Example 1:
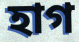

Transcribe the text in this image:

হাগ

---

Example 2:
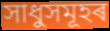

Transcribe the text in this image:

সাধুসমূহৰ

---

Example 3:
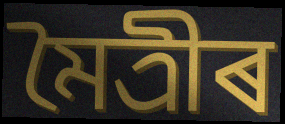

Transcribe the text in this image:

মৈত্ৰীৰ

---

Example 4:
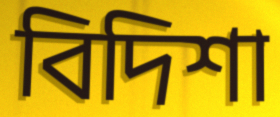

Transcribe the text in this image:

বিদিশা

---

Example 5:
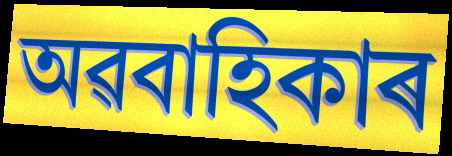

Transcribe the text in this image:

অৱবাহিকাৰ